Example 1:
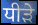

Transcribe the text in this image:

ਧੀੜੇ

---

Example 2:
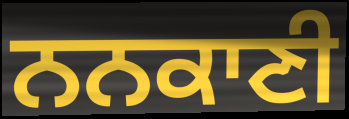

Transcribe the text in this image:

ਨਨਕਾਣੀ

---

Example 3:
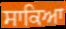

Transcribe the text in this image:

ਸਾਕਿਆ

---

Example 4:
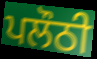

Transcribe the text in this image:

ਪਲੌਠੀ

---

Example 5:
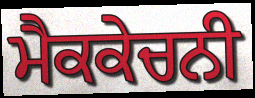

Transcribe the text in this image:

ਮੈਕਕੇਚਨੀ